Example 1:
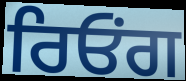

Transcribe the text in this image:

ਰਿਓਂਗ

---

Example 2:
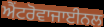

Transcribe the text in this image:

ਐਂਟਰੋਵਾਜਾਈਨਲ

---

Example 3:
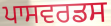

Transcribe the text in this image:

ਪਾਸਵਰਡਸ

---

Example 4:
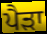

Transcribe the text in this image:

ਪੈੜਾ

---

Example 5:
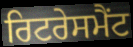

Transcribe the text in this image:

ਰਿਟਰੇਸਮੈਂਟ